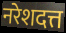
नरेशदत्त